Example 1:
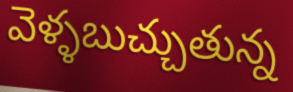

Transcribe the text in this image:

వెళ్ళబుచ్చుతున్న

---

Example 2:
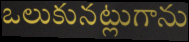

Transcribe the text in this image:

ఒలుకునట్లుగాను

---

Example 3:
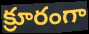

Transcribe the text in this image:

క్రూరంగా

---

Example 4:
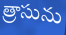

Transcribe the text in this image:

త్రాసును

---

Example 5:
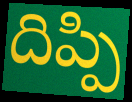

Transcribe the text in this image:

దిప్పి